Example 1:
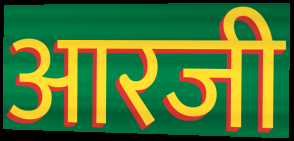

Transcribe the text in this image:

आरजी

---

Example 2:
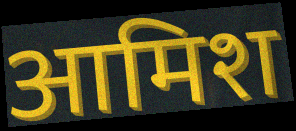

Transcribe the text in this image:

आमिश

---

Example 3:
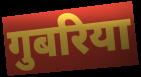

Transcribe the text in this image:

गुबरिया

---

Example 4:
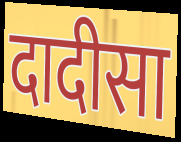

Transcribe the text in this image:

दादीसा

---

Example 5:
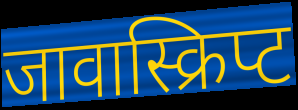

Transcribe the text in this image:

जावास्क्रिप्ट